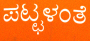
ಪಟ್ಟಳಂತೆ